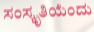
ಸಂಸ್ಕೃತಿಯೆಂದು